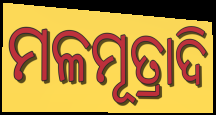
ମଳମୂତ୍ରାଦି